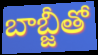
బాబ్జీతో